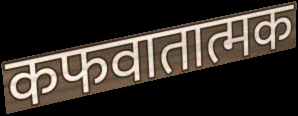
कफवातात्मक